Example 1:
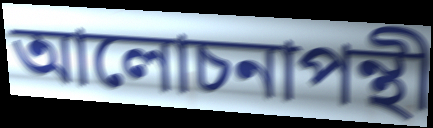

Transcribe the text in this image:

আলোচনাপন্থী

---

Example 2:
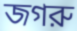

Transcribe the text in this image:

জগরু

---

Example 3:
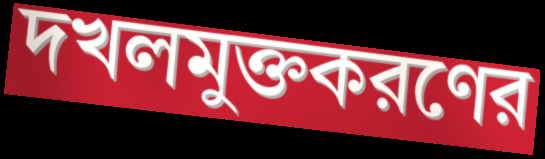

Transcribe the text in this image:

দখলমুক্তকরণের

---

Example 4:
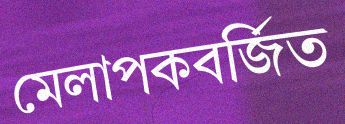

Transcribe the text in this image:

মেলাপকবর্জিত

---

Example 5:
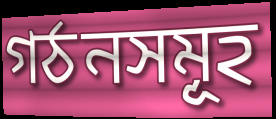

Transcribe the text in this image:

গঠনসমূহ